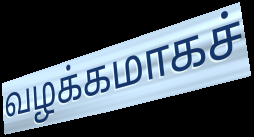
வழக்கமாகச்